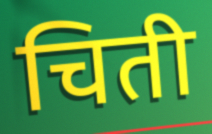
चिती